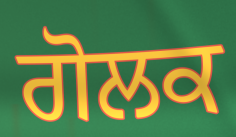
ਗੋਲਕ